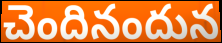
చెందినందున